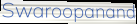
Swaroopanand